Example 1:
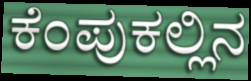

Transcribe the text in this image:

ಕೆಂಪುಕಲ್ಲಿನ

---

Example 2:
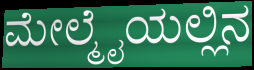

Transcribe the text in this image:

ಮೇಲ್ಮೈಯಲ್ಲಿನ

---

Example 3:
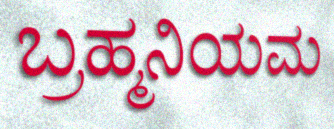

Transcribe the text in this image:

ಬ್ರಹ್ಮನಿಯಮ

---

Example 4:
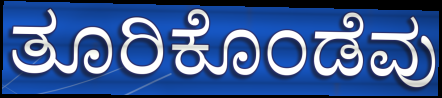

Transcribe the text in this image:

ತೂರಿಕೊಂಡೆವು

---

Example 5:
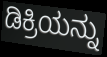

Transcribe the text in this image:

ಡಿಕ್ರಿಯನ್ನು